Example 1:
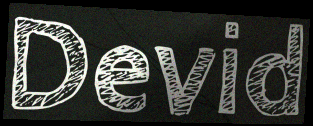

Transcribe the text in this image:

Devid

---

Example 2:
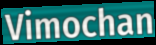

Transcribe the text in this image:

Vimochan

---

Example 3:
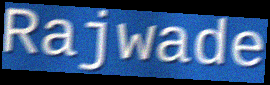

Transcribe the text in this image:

Rajwade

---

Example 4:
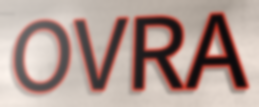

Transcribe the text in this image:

OVRA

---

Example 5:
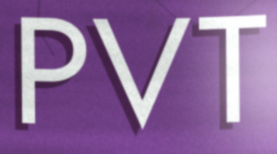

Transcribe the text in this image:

PVT